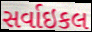
સર્વાઇકલ